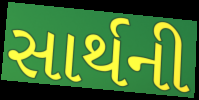
સાર્થની